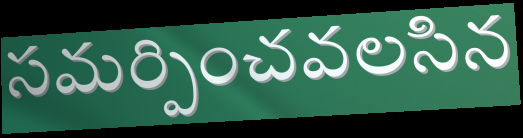
సమర్పించవలసిన